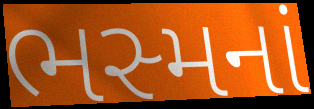
ભસ્મનાં